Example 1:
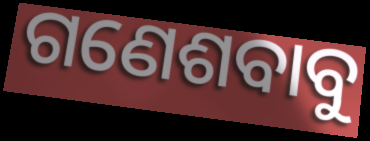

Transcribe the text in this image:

ଗଣେଶବାବୁ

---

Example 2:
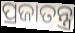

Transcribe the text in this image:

ପ୍ରଜାତନ୍ତ୍ର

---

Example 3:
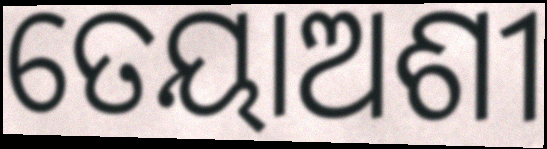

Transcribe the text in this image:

ତେୟାଅଶୀ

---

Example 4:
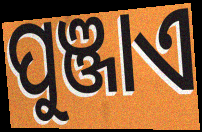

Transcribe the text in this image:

ପୁଞ୍ଜାଏ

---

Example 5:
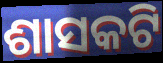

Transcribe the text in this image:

ଶାସକଟି